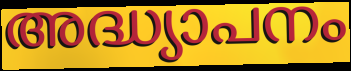
അദ്ധ്യാപനം